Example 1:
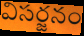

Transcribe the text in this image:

విసర్జనం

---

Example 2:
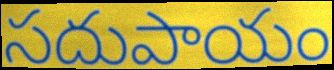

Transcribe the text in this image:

సదుపాయం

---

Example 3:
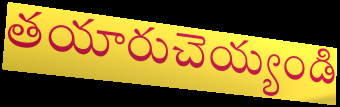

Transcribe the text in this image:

తయారుచెయ్యండి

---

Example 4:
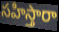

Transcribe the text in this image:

సహిస్తారా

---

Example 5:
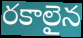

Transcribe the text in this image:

రకాలైన